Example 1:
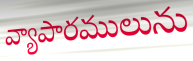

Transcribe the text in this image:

వ్యాపారములును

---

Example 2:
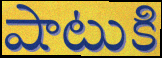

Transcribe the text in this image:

షాటుకి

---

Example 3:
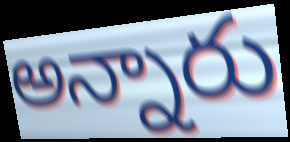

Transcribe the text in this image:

అన్నారు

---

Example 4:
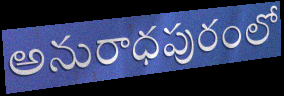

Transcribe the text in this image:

అనురాధపురంలో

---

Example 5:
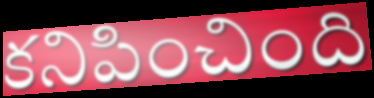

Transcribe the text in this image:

కనిపించింది